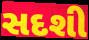
સદશી